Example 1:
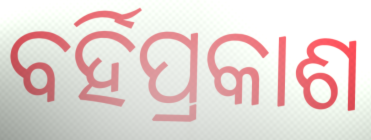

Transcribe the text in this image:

ବର୍ହିପ୍ରକାଶ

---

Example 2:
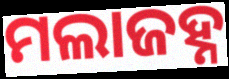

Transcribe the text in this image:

ମଲାଜହ୍ନ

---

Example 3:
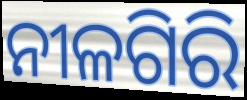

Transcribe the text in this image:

ନୀଳଗିରି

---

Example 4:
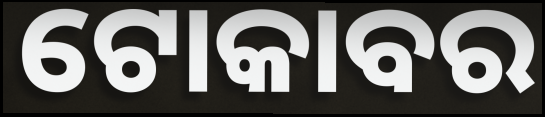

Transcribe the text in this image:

ଟୋକାବର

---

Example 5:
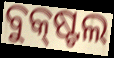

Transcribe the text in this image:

ବୁକ୍‌ଷ୍ଟଲ